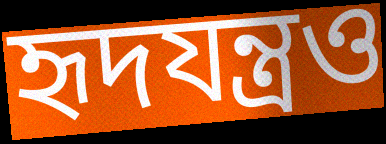
হৃদযন্ত্রও